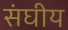
संघीय